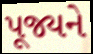
પૂજ્યને